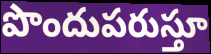
పొందుపరుస్తూ